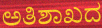
ಅತಿಶಾಖದ